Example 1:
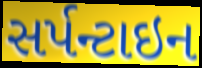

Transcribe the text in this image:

સર્પન્ટાઇન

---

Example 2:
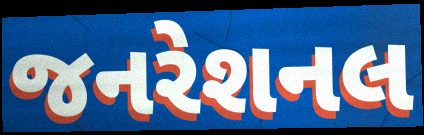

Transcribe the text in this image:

જનરેશનલ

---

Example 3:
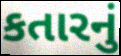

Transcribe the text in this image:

કતારનું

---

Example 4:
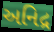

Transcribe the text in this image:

અનિદ્ર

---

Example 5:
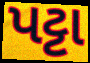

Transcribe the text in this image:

પટ્ટા